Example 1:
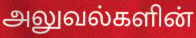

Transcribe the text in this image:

அலுவல்களின்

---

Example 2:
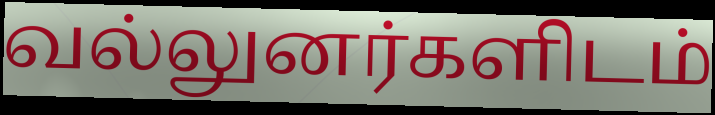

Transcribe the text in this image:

வல்லுனர்களிடம்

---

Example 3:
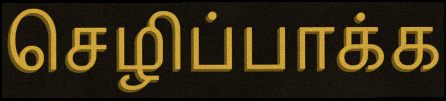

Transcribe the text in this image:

செழிப்பாக்க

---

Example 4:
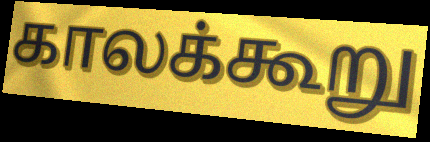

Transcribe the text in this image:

காலக்கூறு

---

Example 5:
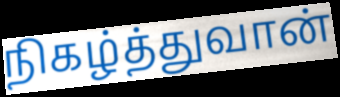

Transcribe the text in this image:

நிகழ்த்துவான்